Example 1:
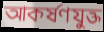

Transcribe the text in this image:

আকর্ষণযুক্ত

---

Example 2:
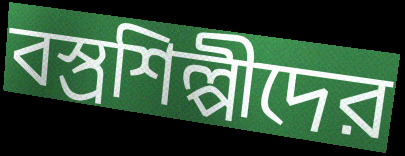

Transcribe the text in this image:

বস্ত্রশিল্পীদের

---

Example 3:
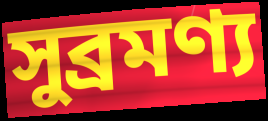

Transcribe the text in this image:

সুব্রমণ্য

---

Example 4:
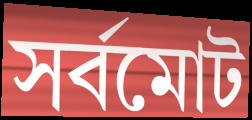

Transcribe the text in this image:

সর্বমোট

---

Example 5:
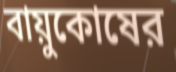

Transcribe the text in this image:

বায়ুকোষের